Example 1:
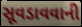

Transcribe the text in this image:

સૂવડાવવાની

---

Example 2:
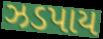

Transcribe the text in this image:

ઝડપાય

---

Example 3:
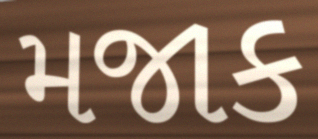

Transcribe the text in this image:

મજાક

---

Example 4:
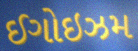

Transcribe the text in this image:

ઈગોઇઝમ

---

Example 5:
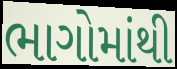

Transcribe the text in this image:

ભાગોમાંથી